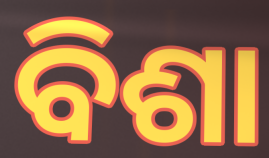
ବିଶା